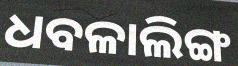
ଧବଳାଲିଙ୍ଗ